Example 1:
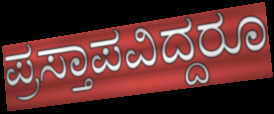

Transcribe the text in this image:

ಪ್ರಸ್ತಾಪವಿದ್ದರೂ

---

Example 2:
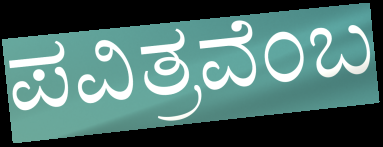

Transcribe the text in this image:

ಪವಿತ್ರವೆಂಬ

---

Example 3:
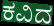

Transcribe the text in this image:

ಕವಿದ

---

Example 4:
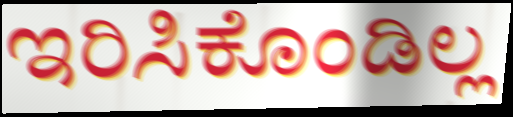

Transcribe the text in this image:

ಇರಿಸಿಕೊಂಡಿಲ್ಲ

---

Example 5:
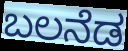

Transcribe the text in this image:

ಬಲನೆಡ